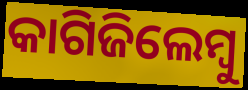
କାଗିଜିଲେମ୍ବୁ